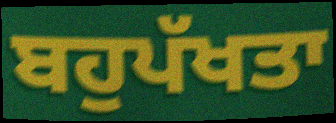
ਬਹੁਪੱਖਤਾ